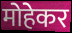
मोहेकर